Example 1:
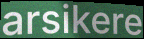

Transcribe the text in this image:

arsikere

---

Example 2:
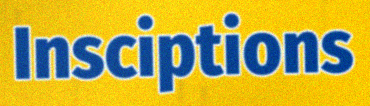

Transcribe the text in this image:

Insciptions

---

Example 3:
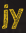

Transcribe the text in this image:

jy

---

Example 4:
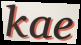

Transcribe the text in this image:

kae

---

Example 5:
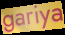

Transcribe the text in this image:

gariya